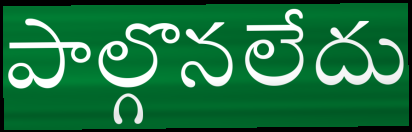
పాల్గొనలేదు